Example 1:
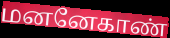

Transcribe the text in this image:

மனனேகாண்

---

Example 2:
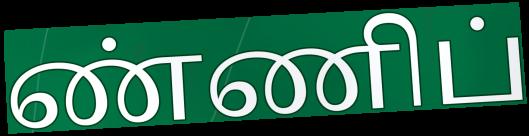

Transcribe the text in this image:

ண்ணிப்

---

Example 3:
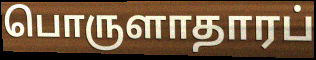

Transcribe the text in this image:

பொருளாதாரப்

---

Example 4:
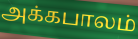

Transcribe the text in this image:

அக்கபாலம்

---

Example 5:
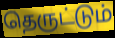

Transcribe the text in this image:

தெருட்டும்